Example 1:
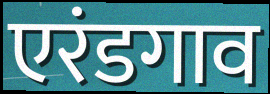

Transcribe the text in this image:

एरंडगाव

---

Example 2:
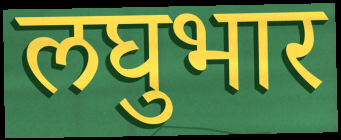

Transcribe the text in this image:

लघुभार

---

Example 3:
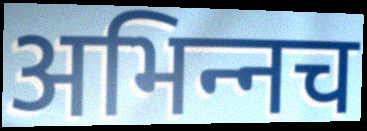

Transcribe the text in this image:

अभिन्नच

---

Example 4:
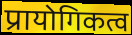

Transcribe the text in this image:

प्रायोगिकत्व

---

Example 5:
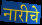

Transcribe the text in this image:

नारीचे